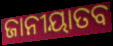
ଜାନୀୟାତବ